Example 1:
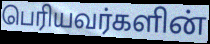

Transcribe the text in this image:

பெரியவர்களின்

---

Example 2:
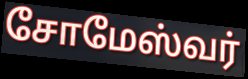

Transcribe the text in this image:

சோமேஸ்வர்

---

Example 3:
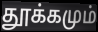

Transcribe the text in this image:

தூக்கமும்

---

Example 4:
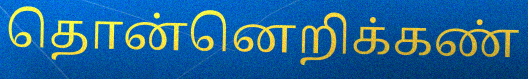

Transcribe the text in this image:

தொன்னெறிக்கண்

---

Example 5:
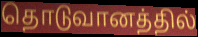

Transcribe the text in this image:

தொடுவானத்தில்